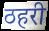
ठहरी